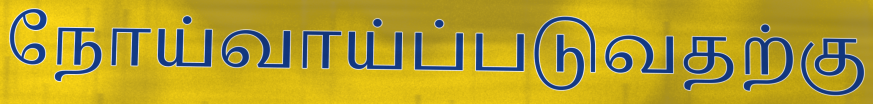
நோய்வாய்ப்படுவதற்கு